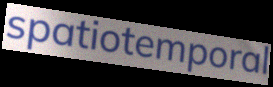
spatiotemporal